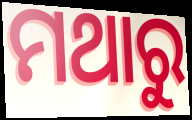
ମଥାରୁ